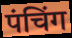
पंचिंग